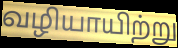
வழியாயிற்று